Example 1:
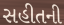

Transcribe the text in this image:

સહીતની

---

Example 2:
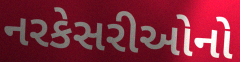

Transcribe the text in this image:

નરકેસરીઓનો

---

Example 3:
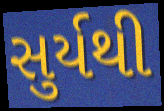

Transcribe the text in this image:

સુર્યથી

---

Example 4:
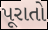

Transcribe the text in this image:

પૂરાતો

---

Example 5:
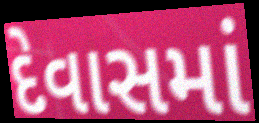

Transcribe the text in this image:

દેવાસમાં